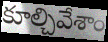
కూల్చివేశాం